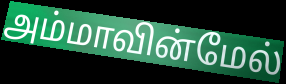
அம்மாவின்மேல்